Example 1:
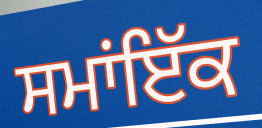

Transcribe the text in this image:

ਸਮਾਂਇੱਕ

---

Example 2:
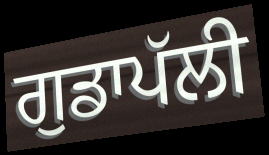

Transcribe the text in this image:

ਗੁਡਾਪੱਲੀ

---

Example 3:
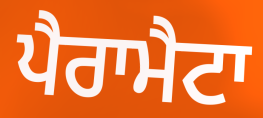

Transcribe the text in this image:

ਪੈਰਾਮੈਟਾ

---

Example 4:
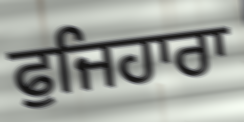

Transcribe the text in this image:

ਫੁਜਿਹਾਰਾ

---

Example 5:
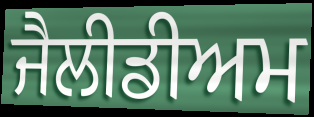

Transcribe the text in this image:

ਜੈਲੀਡੀਅਮ